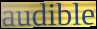
audible